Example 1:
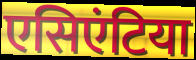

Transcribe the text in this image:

एसिएंटिया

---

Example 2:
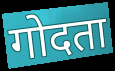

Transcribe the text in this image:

गोदता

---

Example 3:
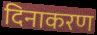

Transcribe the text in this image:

दिनाकरण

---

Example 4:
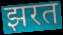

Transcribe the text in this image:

झरत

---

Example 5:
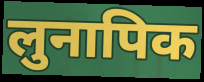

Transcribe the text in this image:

लुनापिक